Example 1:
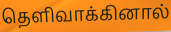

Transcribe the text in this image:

தெளிவாக்கினால்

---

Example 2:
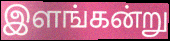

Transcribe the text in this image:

இளங்கன்று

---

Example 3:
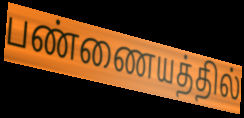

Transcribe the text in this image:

பண்ணையத்தில்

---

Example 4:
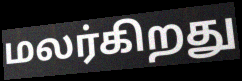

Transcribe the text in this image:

மலர்கிறது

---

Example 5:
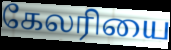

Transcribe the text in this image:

கேலரியை